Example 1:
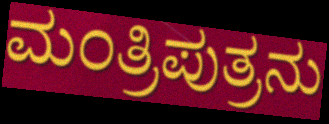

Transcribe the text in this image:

ಮಂತ್ರಿಪುತ್ರನು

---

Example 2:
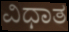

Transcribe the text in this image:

ವಿಧಾತ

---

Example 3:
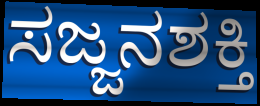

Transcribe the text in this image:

ಸಜ್ಜನಶಕ್ತಿ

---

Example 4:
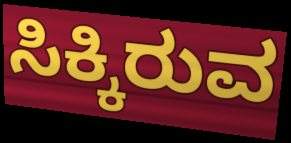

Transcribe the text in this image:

ಸಿಕ್ಕಿರುವ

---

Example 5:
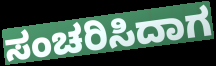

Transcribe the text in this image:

ಸಂಚರಿಸಿದಾಗ